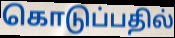
கொடுப்பதில்